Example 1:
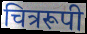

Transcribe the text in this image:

चित्ररूपी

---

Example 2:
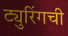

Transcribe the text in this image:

ट्युरिंगची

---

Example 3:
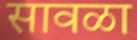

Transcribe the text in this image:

सावळा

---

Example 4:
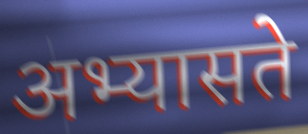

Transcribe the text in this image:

अभ्यासते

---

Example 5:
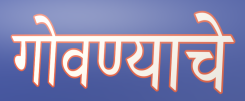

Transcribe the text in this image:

गोवण्याचे